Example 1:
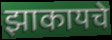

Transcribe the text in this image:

झाकायचे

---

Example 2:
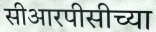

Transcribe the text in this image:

सीआरपीसीच्या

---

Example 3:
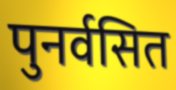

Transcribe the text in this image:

पुनर्वसित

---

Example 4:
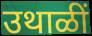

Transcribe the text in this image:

उथाळीं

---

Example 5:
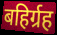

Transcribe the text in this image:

बहिर्ग्रह